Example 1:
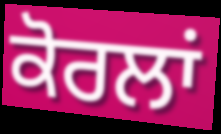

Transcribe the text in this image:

ਕੋਰਲਾਂ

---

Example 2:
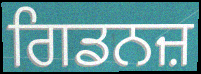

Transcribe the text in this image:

ਗਿਡਨਜ਼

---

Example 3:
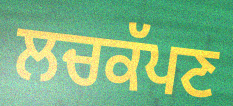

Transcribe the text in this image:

ਲਚਕੱਪਣ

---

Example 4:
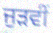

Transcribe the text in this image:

ਜੁੜਵੀਂ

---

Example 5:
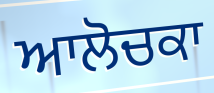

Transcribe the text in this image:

ਆਲੋਚਕਾ